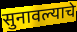
सुनावल्याचे